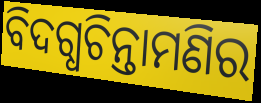
ବିଦଗ୍ଧଚିନ୍ତାମଣିର